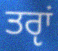
ਤਰੵਾਂ